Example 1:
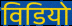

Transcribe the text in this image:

विडियो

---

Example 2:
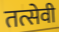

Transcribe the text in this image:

तत्सेवी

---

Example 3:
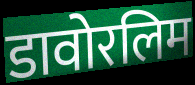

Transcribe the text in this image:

डावोरलिम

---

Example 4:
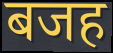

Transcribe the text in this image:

बजह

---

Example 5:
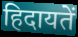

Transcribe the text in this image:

हिदायतें